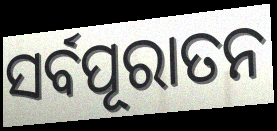
ସର୍ବପୂରାତନ